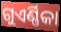
ଗୁଏର୍ଣ୍ଣିକା